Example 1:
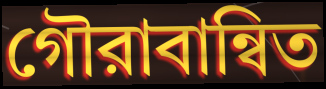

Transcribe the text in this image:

গৌরাবান্বিত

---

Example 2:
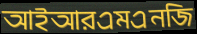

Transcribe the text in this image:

আইআরএমএনজি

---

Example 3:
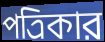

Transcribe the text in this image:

পত্রিকার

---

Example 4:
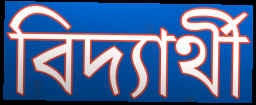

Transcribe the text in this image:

বিদ্যার্থী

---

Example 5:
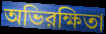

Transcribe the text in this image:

অভিরক্ষিতা